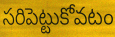
సరిపెట్టుకోవటం